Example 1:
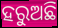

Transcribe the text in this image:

ହରୁଅଛି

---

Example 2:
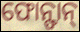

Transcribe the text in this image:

ଫୋନ୍ଫାନ୍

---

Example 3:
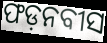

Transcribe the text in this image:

ଫଡ଼ନବୀସ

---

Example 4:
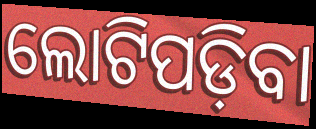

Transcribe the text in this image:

ଲୋଟିପଡ଼ିବା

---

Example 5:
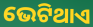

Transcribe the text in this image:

ଭେଟିଥାଏ